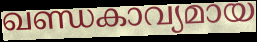
ഖണ്ഡകാവ്യമായ